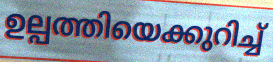
ഉല്പത്തിയെക്കുറിച്ച്